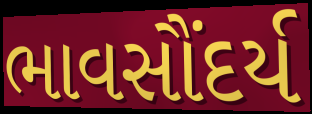
ભાવસૌંદર્ય